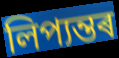
লিপ্যন্তৰ